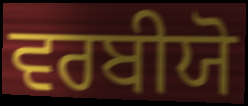
ਵਰਬੀਯੋ